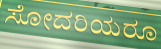
ಸೋದರಿಯರೂ